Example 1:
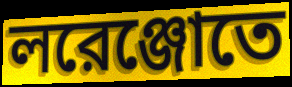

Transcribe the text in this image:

লরেঞ্জোতে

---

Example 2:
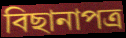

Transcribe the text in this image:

বিছানাপত্র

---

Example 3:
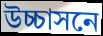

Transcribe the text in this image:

উচ্চাসনে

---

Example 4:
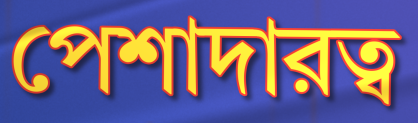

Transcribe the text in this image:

পেশাদারত্ব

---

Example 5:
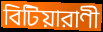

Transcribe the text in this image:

বিটিয়ারাণী